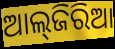
ଆଲ୍‌ଜିରିଆ